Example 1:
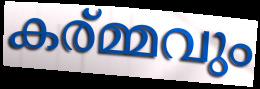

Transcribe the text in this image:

കര്മ്മവും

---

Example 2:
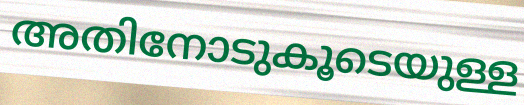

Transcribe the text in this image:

അതിനോടുകൂടെയുള്ള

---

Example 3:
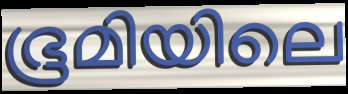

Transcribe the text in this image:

ഭൂമിയിലെ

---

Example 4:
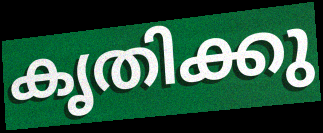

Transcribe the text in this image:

കൃതിക്കു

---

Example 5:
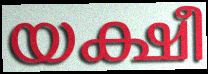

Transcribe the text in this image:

യക്ഷീ